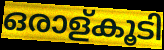
ഒരാള്കൂടി